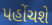
પહોંચશે